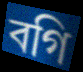
বগি